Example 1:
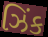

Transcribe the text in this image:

ઝિંક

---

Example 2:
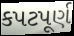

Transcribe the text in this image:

કપટપૂર્ણ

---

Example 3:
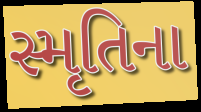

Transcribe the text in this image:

સ્મૃતિના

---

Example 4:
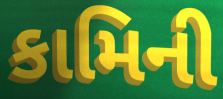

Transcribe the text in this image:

કામિની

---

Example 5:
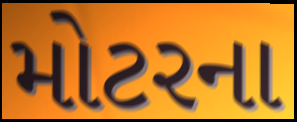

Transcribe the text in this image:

મોટરના